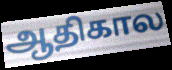
ஆதிகால